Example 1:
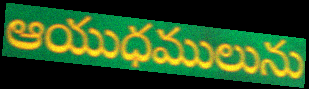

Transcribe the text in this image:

ఆయుధములును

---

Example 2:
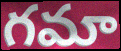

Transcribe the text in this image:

గమా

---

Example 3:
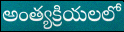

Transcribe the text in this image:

అంత్యక్రియలలో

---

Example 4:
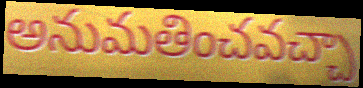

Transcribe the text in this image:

అనుమతించవచ్చా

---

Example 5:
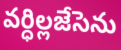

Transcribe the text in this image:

వర్ధిల్లజేసెను